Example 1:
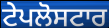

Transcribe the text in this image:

ਟੇਪਲੋਸਟਾਰ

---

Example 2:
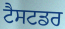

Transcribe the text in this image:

ਟੈਸਟਡਰ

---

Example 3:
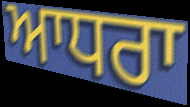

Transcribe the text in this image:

ਆਧਰਾ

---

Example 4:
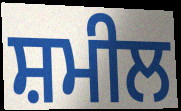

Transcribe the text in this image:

ਸ਼ਮੀਲ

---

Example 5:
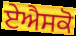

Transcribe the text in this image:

ਏਐਸਕੋ